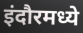
इंदौरमध्ये